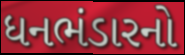
ધનભંડારનો